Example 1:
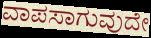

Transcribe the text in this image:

ವಾಪಸಾಗುವುದೇ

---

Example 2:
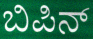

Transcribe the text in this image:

ಬಿಪಿನ್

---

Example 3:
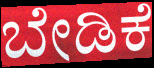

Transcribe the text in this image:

ಬೇಡಿಕೆ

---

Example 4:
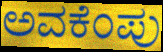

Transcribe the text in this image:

ಅವಕೆಂಪು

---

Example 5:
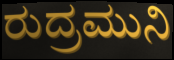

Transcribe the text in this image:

ರುದ್ರಮುನಿ